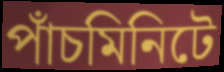
পাঁচমিনিটে